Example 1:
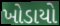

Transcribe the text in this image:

ખોડાયો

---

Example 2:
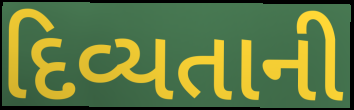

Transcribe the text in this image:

દિવ્યતાની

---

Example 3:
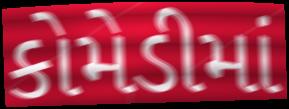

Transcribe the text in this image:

કોમેડીમાં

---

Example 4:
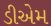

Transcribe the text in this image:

ડીએમ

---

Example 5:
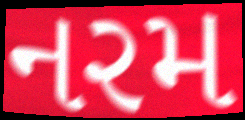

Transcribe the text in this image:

નરમ